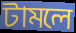
টামলে